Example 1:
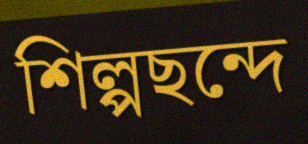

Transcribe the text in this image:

শিল্পছন্দে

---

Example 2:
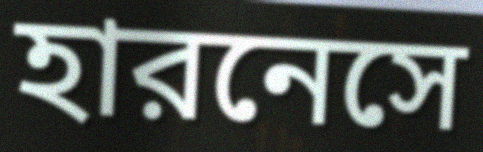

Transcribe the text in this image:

হারনেসে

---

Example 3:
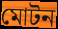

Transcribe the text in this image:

মোটন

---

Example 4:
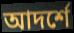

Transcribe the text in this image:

আদর্শে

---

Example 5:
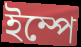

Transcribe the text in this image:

ইম্পে